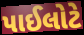
પાઈલોટે